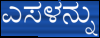
ಎಸಳನ್ನು